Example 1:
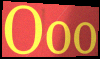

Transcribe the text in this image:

Ooo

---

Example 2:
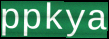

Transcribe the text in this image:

ppkya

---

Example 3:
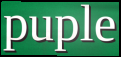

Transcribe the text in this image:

puple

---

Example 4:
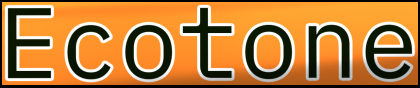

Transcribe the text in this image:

Ecotone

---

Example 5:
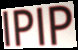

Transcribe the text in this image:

IPIP